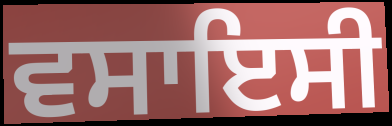
ਵਸਾਇਸੀ